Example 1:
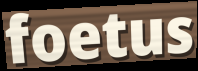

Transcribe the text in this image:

foetus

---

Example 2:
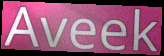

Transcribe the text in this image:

Aveek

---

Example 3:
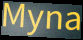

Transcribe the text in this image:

Myna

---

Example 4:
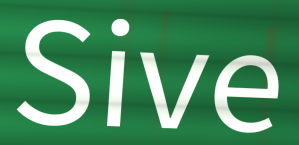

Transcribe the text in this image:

Sive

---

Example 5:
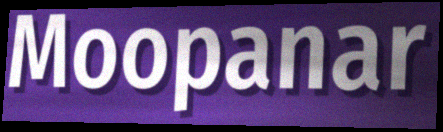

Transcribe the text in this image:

Moopanar